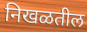
निखळतील